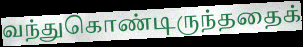
வந்துகொண்டிருந்ததைக்